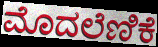
ಮೊದಲೆಣಿಕೆ